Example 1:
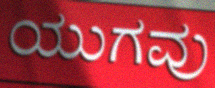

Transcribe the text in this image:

ಯುಗವು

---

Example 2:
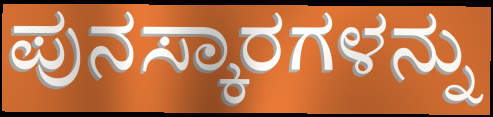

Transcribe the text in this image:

ಪುನಸ್ಕಾರಗಳನ್ನು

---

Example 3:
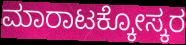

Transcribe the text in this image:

ಮಾರಾಟಕ್ಕೋಸ್ಕರ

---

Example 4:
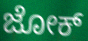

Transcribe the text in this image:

ಜೋಕ್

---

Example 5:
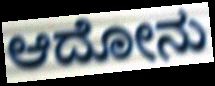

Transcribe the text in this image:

ಆದೋನು